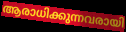
ആരാധിക്കുന്നവരായി